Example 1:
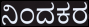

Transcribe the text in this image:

ನಿಂದಕರ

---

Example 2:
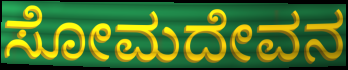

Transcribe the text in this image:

ಸೋಮದೇವನ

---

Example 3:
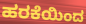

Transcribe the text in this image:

ಹರಕೆಯಿಂದ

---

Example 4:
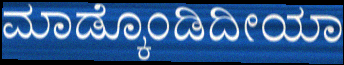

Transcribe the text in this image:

ಮಾಡ್ಕೊಂಡಿದೀಯಾ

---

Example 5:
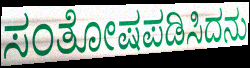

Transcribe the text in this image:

ಸಂತೋಷಪಡಿಸಿದನು